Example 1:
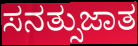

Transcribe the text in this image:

ಸನತ್ಸುಜಾತ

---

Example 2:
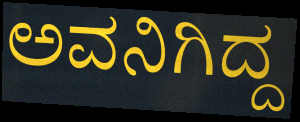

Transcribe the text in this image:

ಅವನಿಗಿದ್ದ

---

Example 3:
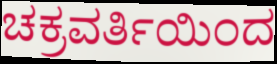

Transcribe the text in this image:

ಚಕ್ರವರ್ತಿಯಿಂದ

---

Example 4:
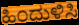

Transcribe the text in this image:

ಹಿಂದುಳಿಸಿ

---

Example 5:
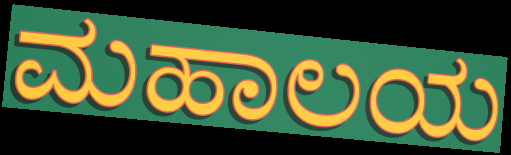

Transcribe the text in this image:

ಮಹಾಲಯ